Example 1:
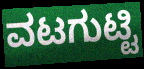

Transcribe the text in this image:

ವಟಗುಟ್ಟಿ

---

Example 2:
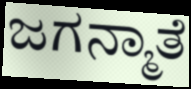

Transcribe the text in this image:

ಜಗನ್ಮಾತೆ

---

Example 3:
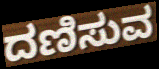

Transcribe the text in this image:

ದಣಿಸುವ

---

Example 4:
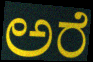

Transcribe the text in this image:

ಅರೆ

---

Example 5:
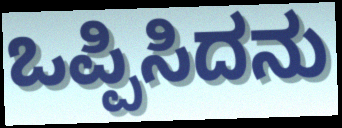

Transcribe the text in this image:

ಒಪ್ಪಿಸಿದನು